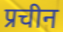
प्रचीन